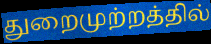
துறைமுற்றத்தில்